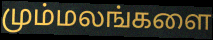
மும்மலங்களை